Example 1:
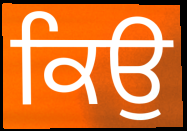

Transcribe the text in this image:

ਕਿਉ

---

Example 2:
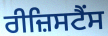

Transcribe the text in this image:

ਰੀਜ਼ਿਸਟੈਂਸ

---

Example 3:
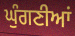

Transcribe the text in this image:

ਘੁੰਗਣੀਆਂ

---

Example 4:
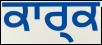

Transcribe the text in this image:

ਕਾਰ੍ਕ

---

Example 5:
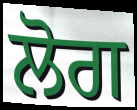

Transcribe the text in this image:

ਲੋਗ